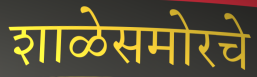
शाळेसमोरचे